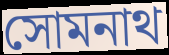
সোমনাথ